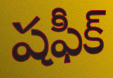
షఫీక్